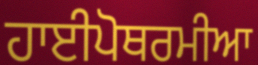
ਹਾਈਪੋਥਰਮੀਆ